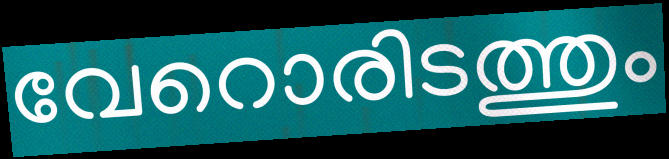
വേറൊരിടത്തും